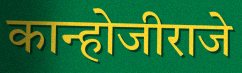
कान्होजीराजे